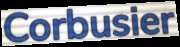
Corbusier